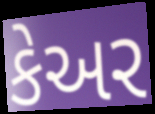
કેઅર